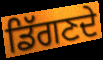
ਡਿੱਗਣਦੇ